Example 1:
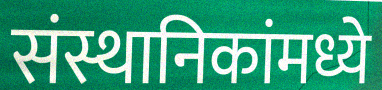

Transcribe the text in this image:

संस्थानिकांमध्ये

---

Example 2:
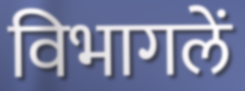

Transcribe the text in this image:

विभागलें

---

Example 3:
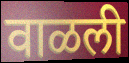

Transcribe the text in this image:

वाळली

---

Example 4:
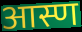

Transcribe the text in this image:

आस्ण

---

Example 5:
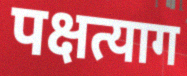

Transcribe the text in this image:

पक्षत्याग